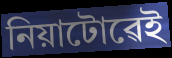
নিয়াটোৱেই